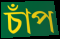
চাঁপ